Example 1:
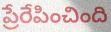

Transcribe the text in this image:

ప్రేరేపించింది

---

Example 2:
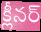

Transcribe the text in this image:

క్లీనర్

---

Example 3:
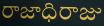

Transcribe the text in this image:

రాజాధిరాజు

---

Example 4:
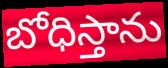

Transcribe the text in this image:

బోధిస్తాను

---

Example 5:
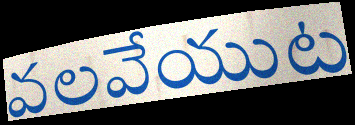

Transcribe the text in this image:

వలవేయుట